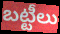
బట్టీలు